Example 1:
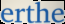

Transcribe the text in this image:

erthe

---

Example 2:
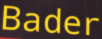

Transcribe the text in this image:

Bader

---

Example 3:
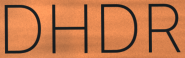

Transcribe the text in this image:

DHDR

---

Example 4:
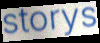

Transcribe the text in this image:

storys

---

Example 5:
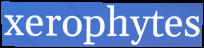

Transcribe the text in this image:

xerophytes